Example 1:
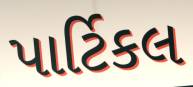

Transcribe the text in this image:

પાર્ટિકલ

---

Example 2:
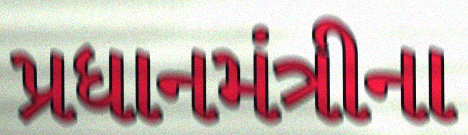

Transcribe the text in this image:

પ્રધાનમંત્રીના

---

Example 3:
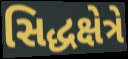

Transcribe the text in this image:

સિદ્ધક્ષેત્રે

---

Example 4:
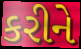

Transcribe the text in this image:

કરીને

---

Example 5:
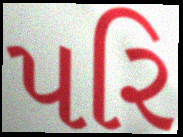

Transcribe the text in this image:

પરિ